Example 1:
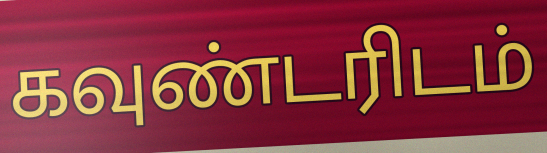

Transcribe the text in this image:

கவுண்டரிடம்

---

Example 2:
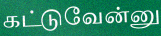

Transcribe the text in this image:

கட்டுவேன்னு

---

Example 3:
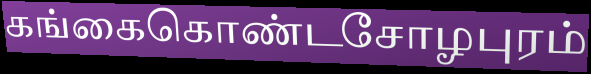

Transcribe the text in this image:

கங்கைகொண்டசோழபுரம்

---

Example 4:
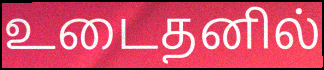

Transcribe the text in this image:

உடைதனில்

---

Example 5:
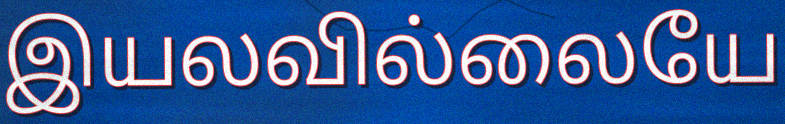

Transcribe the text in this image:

இயலவில்லையே